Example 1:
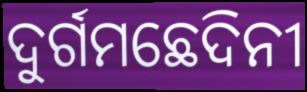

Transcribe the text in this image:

ଦୁର୍ଗମଛେଦିନୀ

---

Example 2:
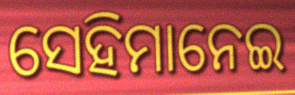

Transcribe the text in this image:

ସେହିମାନେଇ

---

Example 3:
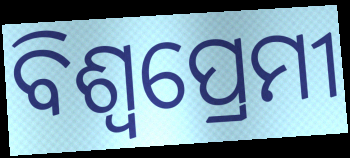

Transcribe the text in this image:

ବିଶ୍ଵପ୍ରେମୀ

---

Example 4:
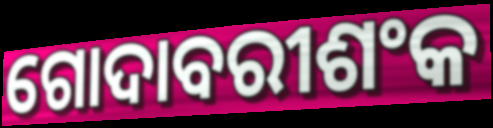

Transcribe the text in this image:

ଗୋଦାବରୀଶଂକ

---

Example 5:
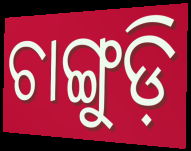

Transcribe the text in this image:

ଚାଙ୍ଗୁଡ଼ି